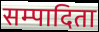
सम्पादिता